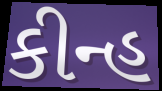
કીન્હ